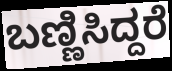
ಬಣ್ಣಿಸಿದ್ದರೆ